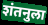
शंतनुला